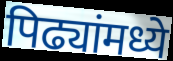
पिढ्यांमध्ये